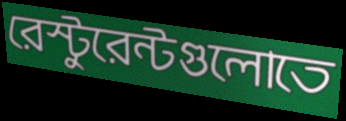
রেস্টুরেন্টগুলোতে